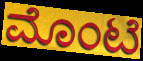
ಮೊಂಟೆ